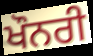
ਖੌਨਰੀ